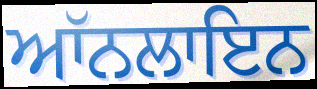
ਆੱਨਲਾਇਨ